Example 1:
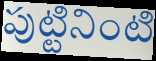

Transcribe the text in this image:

పుట్టినింటి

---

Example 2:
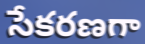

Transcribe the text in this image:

సేకరణగా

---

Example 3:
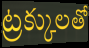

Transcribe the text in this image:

ట్రక్కులతో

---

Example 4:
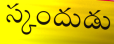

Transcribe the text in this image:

స్కందుడు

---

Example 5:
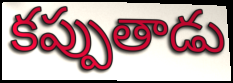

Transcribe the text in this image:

కప్పుతాడు